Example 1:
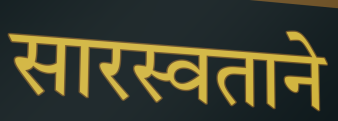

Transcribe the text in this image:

सारस्वताने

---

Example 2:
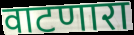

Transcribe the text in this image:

वाटणारा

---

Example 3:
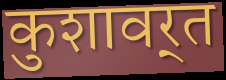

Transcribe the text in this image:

कुशावर्त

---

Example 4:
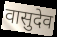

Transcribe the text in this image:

वासुदेव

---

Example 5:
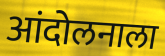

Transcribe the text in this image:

आंदोलनाला